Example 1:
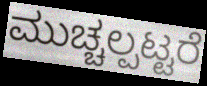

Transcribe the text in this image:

ಮುಚ್ಚಲ್ಪಟ್ಟರೆ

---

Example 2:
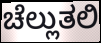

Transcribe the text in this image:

ಚೆಲ್ಲುತಲಿ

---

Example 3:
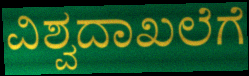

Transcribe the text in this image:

ವಿಶ್ವದಾಖಲೆಗೆ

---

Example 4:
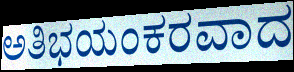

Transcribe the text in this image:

ಅತಿಭಯಂಕರವಾದ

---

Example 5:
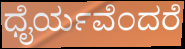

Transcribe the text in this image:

ಧೈರ್ಯವೆಂದರೆ